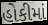
હોકીમાં